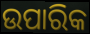
ଉପାରିକ